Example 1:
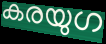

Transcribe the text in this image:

കരയുഗ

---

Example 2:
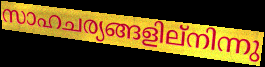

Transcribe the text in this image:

സാഹചര്യങ്ങളില്നിന്നു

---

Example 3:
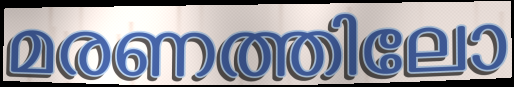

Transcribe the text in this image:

മരണത്തിലോ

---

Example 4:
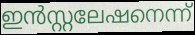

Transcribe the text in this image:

ഇൻസ്റ്റലേഷനെന്ന്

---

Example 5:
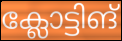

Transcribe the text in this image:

ക്ലോട്ടിങ്